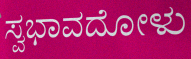
ಸ್ವಭಾವದೋಳು